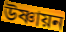
উষ্ণায়ন